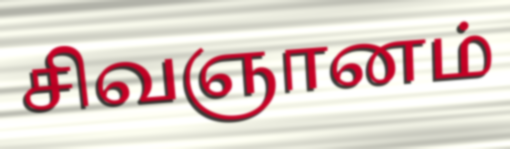
சிவஞானம்